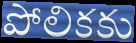
పోలికకు